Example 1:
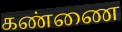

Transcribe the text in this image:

கண்ணை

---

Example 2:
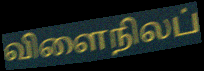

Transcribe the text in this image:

விளைநிலப்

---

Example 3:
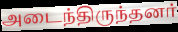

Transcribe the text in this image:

அடைந்திருந்தனர்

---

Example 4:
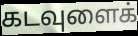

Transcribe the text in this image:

கடவுளைக்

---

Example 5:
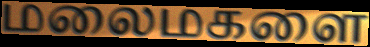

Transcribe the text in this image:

மலைமகளை